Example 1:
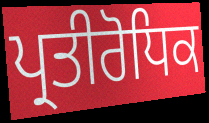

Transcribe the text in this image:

ਪ੍ਰਤੀਰੋਧਿਕ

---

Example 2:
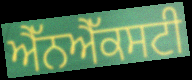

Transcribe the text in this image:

ਐੱਨਐੱਕਸਟੀ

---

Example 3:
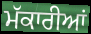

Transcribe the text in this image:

ਮੱਕਾਰੀਆਂ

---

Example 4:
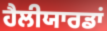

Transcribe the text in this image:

ਹੈਲੀਯਾਰਡਾਂ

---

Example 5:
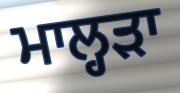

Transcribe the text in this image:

ਮਾਲ੍ਹੜਾ